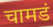
चामडं